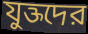
যুক্তদের